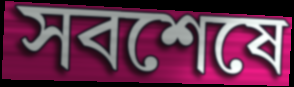
সবশেষে